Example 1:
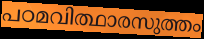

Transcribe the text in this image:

പഠമവിത്ഥാരസുത്തം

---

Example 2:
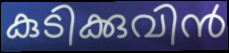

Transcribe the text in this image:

കുടിക്കുവിൻ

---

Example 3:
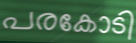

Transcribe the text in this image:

പരകോടി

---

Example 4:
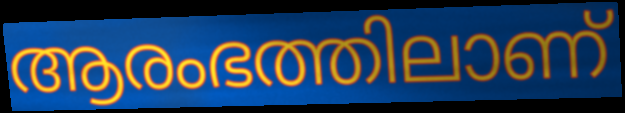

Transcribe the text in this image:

ആരംഭത്തിലാണ്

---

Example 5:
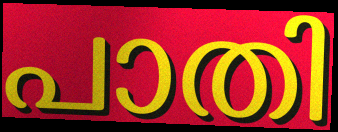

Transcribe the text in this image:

പാതി